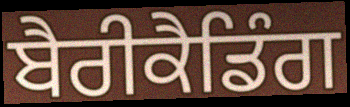
ਬੈਰੀਕੈਡਿੰਗ